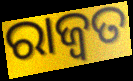
ରାଜ୍ୱତ